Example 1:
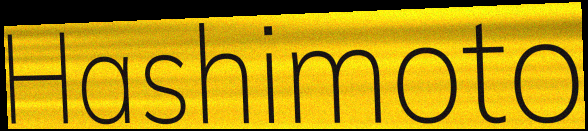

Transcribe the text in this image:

Hashimoto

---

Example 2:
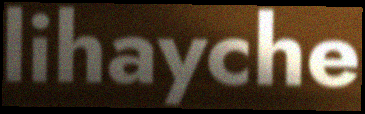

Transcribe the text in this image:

lihayche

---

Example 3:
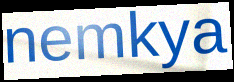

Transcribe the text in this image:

nemkya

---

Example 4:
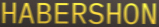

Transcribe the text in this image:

HABERSHON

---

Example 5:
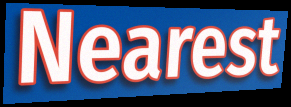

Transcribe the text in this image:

Nearest